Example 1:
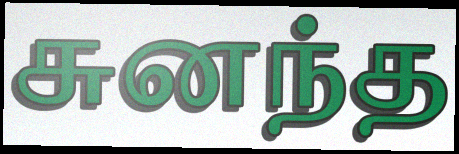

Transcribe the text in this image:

சுனந்த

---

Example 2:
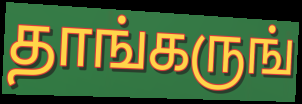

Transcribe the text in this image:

தாங்கருங்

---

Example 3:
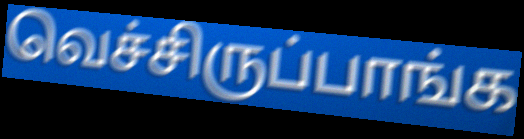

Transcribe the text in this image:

வெச்சிருப்பாங்க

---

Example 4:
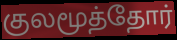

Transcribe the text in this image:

குலமூத்தோர்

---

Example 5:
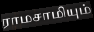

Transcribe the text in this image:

ராமசாமியும்